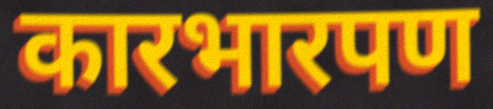
कारभारपण